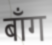
बाँग